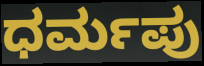
ಧರ್ಮಪು